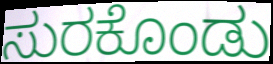
ಸುರಕೊಂಡು